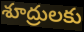
శూద్రులకు